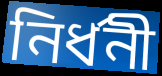
নির্ধনী